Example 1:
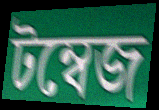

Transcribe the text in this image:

টম্বেজ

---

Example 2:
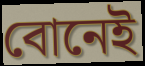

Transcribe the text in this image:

বোনেই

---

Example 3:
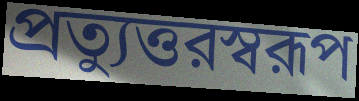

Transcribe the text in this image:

প্রত্যুত্তরস্বরূপ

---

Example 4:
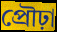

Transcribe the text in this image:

প্রৌঢ়া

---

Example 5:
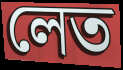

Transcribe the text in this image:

লেত